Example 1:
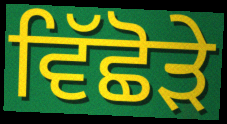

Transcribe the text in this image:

ਵਿੱਛੋੜੇ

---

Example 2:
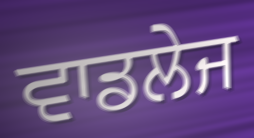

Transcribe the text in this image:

ਵਾਡਲੇਜ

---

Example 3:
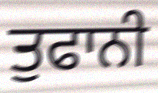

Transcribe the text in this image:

ਤੁਫਾਨੀ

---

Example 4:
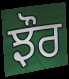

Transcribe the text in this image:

ਝੌਰ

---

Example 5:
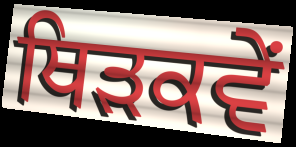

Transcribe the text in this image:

ਥਿੜਕਵੇਂ